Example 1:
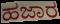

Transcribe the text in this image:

ಹಜಾರ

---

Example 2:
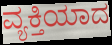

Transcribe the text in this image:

ವ್ಯಕ್ತಿಯಾದ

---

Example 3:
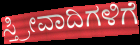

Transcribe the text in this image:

ಸ್ತ್ರೀವಾದಿಗಳಿಗೆ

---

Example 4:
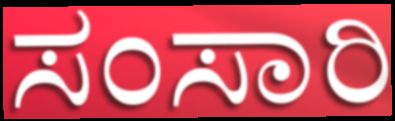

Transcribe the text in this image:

ಸಂಸಾರಿ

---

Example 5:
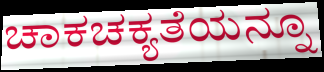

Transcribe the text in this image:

ಚಾಕಚಕ್ಯತೆಯನ್ನೂ